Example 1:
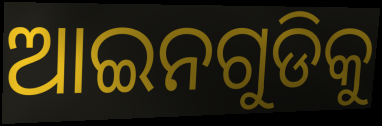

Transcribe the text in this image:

ଆଇନଗୁଡିକୁ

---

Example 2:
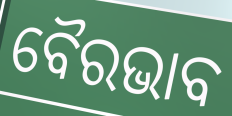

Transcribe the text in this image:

ବୈରଭାବ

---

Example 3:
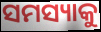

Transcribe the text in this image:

ସମସ୍ୟାକୁ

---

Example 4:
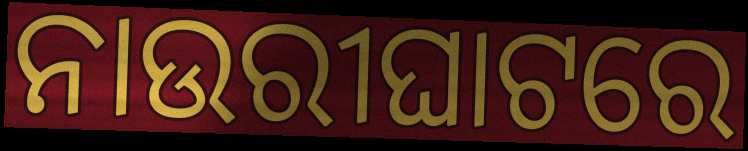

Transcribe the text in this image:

ନାଉରୀଘାଟରେ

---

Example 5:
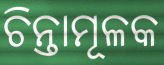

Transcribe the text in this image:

ଚିନ୍ତାମୂଳକ